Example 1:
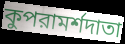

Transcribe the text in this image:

কুপরামর্শদাতা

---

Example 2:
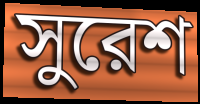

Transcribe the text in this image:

সুরেশ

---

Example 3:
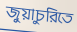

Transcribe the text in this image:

জুয়াচুরিতে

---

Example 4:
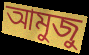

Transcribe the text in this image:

আমুজু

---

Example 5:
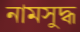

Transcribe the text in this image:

নামসুদ্ধ